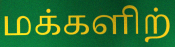
மக்களிற்